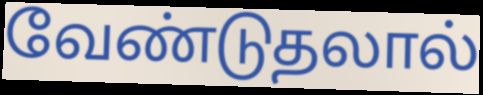
வேண்டுதலால்